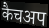
कैचअप